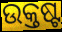
ଉକ୍ତଷ୍ଟ